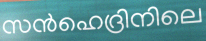
സൻഹെദ്രിനിലെ